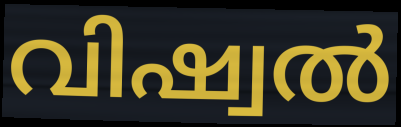
വിഷ്വൽ